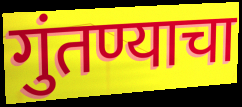
गुंतण्याचा